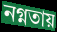
নগ্নতায়